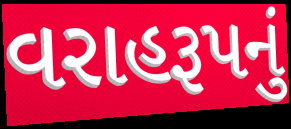
વરાહરૂપનું